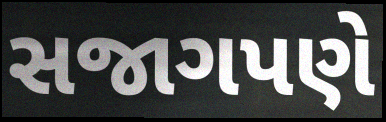
સજાગપણે